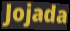
Jojada